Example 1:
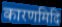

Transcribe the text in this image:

कारणमिदि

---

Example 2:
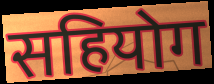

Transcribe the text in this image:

सहियोग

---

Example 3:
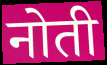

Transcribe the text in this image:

नोती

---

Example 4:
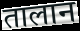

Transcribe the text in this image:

तालान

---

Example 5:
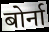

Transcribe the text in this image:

बोर्ना